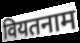
वियतनाम